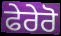
ਫੇਰੇਰੋ